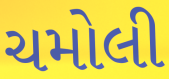
ચમોલી